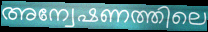
അന്വേഷണത്തിലെ